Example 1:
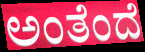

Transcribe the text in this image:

ಅಂತೆಂದೆ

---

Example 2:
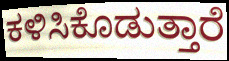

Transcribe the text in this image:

ಕಳಿಸಿಕೊಡುತ್ತಾರೆ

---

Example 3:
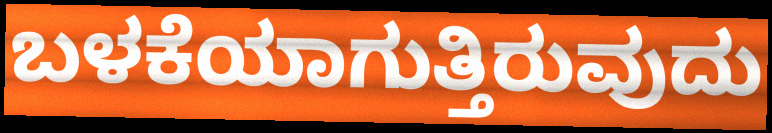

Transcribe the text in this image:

ಬಳಕೆಯಾಗುತ್ತಿರುವುದು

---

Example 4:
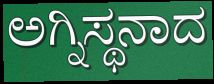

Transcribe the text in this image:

ಅಗ್ನಿಸ್ಥನಾದ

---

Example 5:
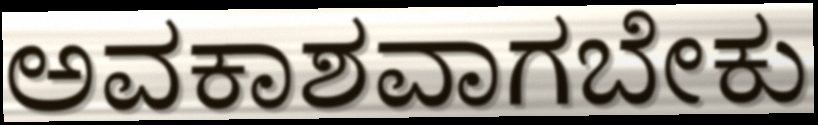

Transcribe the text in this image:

ಅವಕಾಶವಾಗಬೇಕು